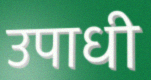
उपाधी